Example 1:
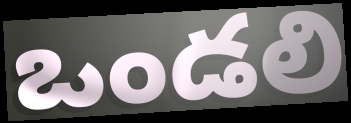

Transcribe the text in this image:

ఒండలి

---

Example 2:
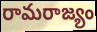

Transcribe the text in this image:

రామరాజ్యం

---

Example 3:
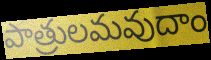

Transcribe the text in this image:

పాత్రులమవుదాం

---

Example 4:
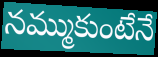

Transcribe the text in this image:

నమ్ముకుంటేనే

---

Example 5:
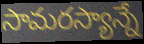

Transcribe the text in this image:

సామరస్యాన్నే